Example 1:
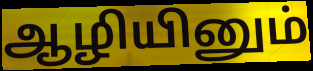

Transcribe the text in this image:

ஆழியினும்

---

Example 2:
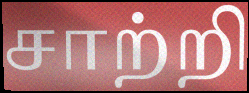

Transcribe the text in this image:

சாற்றி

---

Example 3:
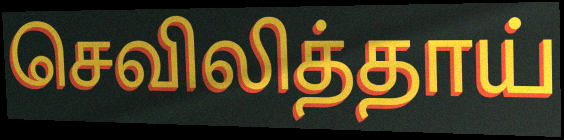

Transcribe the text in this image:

செவிலித்தாய்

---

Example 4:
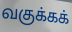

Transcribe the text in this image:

வகுக்கக்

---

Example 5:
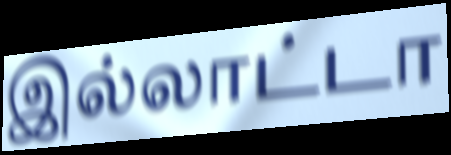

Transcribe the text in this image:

இல்லாட்டா